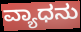
ವ್ಯಾಧನು